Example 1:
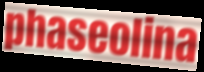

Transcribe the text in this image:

phaseolina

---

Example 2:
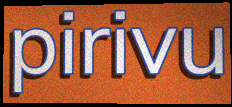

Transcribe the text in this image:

pirivu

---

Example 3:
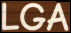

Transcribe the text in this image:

LGA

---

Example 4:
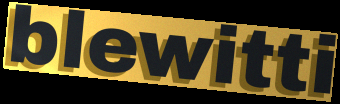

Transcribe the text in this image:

blewitti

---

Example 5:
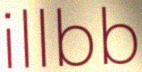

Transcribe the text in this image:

illbb